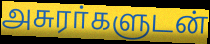
அசுரர்களுடன்